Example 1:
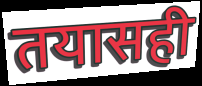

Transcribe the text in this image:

तयासही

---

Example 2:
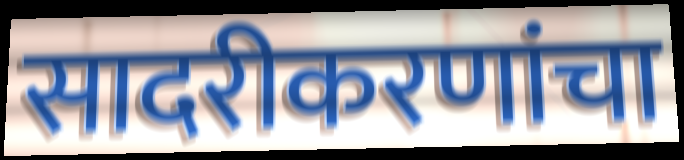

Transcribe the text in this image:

सादरीकरणांचा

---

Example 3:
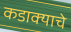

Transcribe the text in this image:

कडाक्याचे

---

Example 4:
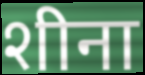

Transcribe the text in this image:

शीना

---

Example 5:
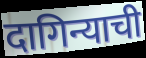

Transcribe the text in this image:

दागिन्याची